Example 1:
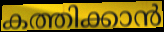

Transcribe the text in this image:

കത്തിക്കാൻ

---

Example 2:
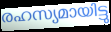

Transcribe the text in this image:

രഹസ്യമായിട്ടു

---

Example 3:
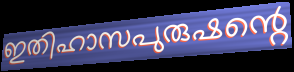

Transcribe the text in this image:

ഇതിഹാസപുരുഷന്റെ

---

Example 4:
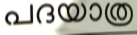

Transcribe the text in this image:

പദയാത്ര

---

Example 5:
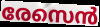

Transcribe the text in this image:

രേസെൻ